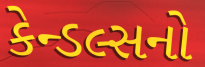
કેન્ડલ્સનો